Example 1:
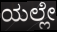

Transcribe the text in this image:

ಯಲ್ಲೇ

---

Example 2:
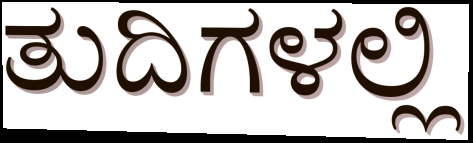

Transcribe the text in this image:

ತುದಿಗಳಲ್ಲಿ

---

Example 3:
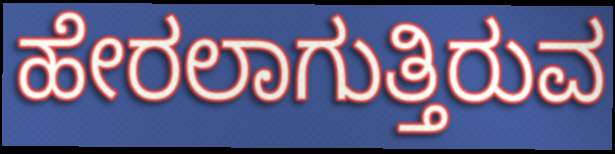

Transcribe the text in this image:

ಹೇರಲಾಗುತ್ತಿರುವ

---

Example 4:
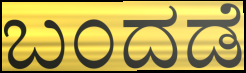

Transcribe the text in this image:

ಬಂದಡೆ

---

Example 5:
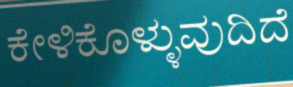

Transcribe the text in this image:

ಕೇಳಿಕೊಳ್ಳುವುದಿದೆ